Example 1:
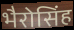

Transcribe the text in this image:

भैरोसिंह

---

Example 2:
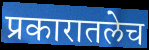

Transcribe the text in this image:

प्रकारातलेच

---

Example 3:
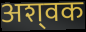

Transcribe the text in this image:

अश्वक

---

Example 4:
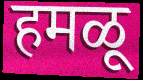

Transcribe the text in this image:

हमळू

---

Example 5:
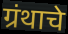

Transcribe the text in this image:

ग्रंथाचे